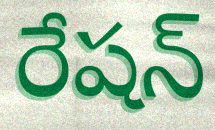
రేషన్